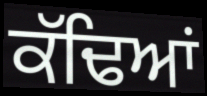
ਕੱਢਿਆਂ